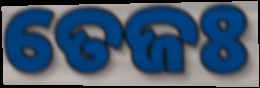
ତେଜଃ